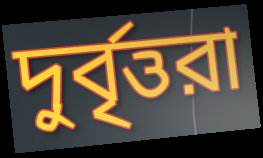
দুর্বৃত্তরা